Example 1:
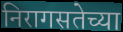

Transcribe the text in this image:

निरागसतेच्या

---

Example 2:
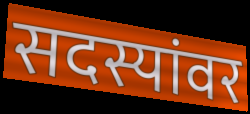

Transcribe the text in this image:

सदस्यांवर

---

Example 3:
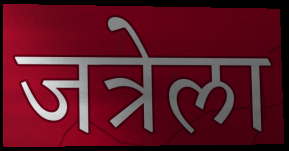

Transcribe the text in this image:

जत्रेला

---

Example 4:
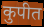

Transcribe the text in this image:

कुपीत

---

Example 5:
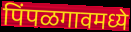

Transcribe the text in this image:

पिंपळगावमध्ये